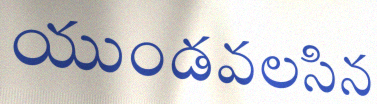
యుండవలసిన